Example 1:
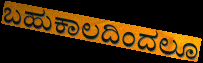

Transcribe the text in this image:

ಬಹುಕಾಲದಿಂದಲೂ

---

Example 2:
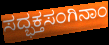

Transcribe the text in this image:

ಸದ್ಭಕ್ತಸಂಗಿನಾಂ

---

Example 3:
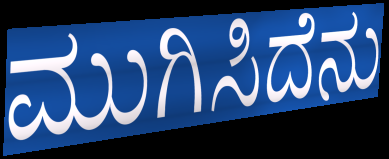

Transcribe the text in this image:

ಮುಗಿಸಿದೆನು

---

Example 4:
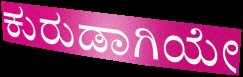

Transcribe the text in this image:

ಕುರುಡಾಗಿಯೇ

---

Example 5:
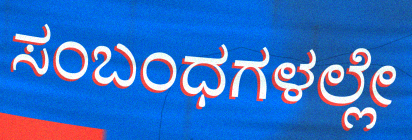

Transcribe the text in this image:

ಸಂಬಂಧಗಳಲ್ಲೇ